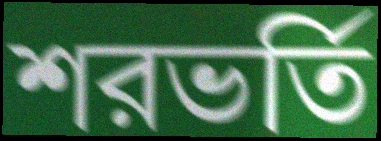
শরভর্তি